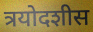
त्रयोदशीस